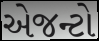
એજન્ટો